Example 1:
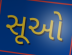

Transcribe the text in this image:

સૂઓ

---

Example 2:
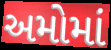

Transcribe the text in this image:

અમોમાં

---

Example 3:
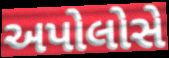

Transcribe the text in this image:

અપોલોસે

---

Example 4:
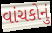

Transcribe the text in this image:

વાંચકોનું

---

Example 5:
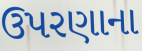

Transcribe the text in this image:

ઉપરણાના